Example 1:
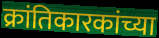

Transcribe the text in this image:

क्रांतिकारकांच्या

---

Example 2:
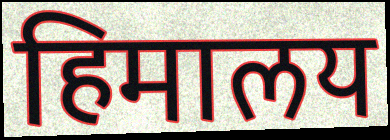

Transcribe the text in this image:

हिमालय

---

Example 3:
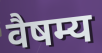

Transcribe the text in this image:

वैषम्य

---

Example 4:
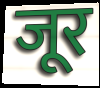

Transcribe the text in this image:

जूर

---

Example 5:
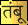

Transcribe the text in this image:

तंबू